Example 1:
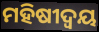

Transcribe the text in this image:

ମହିଷୀଦ୍ୱୟ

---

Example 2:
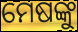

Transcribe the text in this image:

ମେଷଙ୍କୁ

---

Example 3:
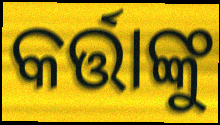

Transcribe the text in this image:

କର୍ତ୍ତାଙ୍କୁ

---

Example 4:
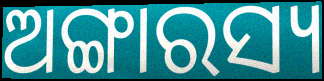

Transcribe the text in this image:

ଅଙ୍ଗାରସ୍ୟ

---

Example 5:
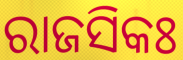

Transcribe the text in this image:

ରାଜସିକଃ